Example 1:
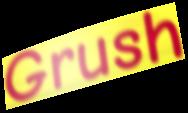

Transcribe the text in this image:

Grush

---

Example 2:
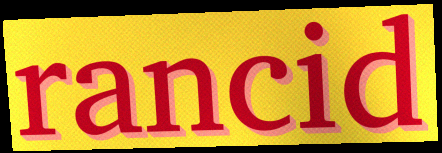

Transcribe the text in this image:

rancid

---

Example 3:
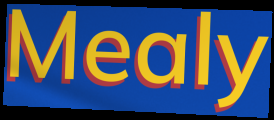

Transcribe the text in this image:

Mealy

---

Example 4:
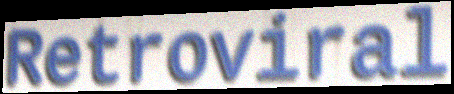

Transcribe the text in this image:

Retroviral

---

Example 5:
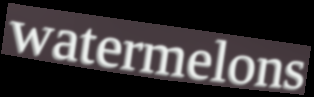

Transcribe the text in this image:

watermelons